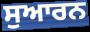
ਸੁਆਰਨ